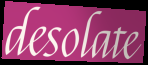
desolate